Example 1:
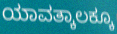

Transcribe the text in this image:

ಯಾವತ್ಕಾಲಕ್ಕೂ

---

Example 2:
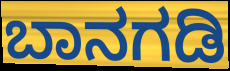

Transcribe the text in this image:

ಬಾನಗಡಿ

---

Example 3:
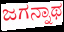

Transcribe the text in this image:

ಜಗನ್ನಾಥ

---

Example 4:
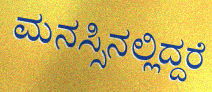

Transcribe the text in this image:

ಮನಸ್ಸಿನಲ್ಲಿದ್ದರೆ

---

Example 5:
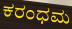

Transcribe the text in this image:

ಕರಂಧಮ